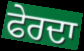
ਫੇਰਦਾ